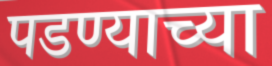
पडण्याच्या